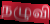
நழுவி